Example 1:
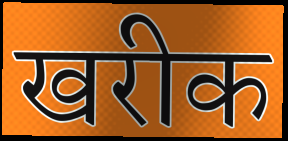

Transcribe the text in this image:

खरीक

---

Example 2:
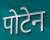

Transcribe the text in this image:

पोटेन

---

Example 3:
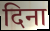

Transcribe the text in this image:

दिना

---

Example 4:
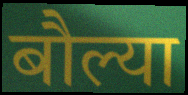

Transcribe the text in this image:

बौल्या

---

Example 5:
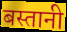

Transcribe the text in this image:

बस्तानी